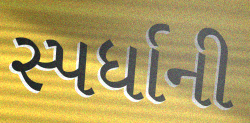
સ્પર્ધાની